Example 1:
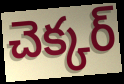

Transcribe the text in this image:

చెక్కర్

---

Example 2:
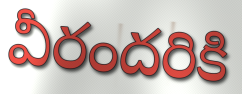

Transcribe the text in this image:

వీరందరికి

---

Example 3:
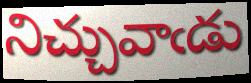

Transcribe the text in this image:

నిచ్చువాఁడు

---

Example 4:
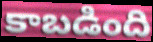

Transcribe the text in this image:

కాబడింది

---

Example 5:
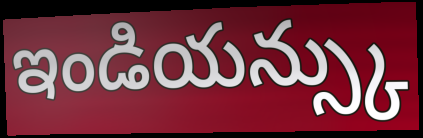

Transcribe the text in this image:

ఇండియన్స్కు